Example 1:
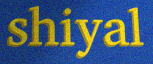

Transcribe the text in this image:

shiyal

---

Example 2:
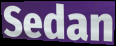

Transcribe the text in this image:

Sedan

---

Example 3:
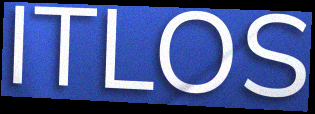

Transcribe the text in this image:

ITLOS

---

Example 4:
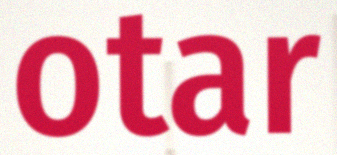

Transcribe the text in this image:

otar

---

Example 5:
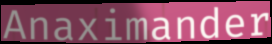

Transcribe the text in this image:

Anaximander